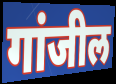
गांजील